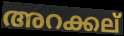
അറക്കല്